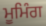
ਮੂਮਿੰਗ